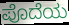
ಪೊದೆಯ